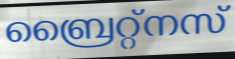
ബ്രൈറ്റ്നസ്